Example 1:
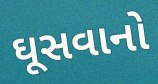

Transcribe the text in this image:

ઘૂસવાનો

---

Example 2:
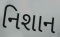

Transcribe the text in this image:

નિશાન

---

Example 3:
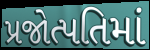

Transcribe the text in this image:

પ્રજોત્પતિમાં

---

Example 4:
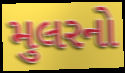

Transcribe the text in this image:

મુલરનો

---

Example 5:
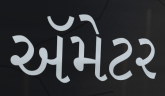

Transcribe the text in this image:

ઍમેટર